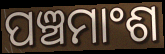
ପଞ୍ଚମାଂଶ